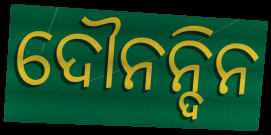
ଦୌନନ୍ଦିନ